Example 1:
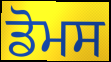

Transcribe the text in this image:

ਡੋਮਸ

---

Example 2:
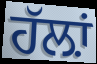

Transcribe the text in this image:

ਹੱਲ਼ਾਂ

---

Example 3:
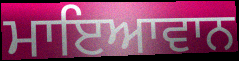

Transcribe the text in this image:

ਮਾਇਆਵਾਨ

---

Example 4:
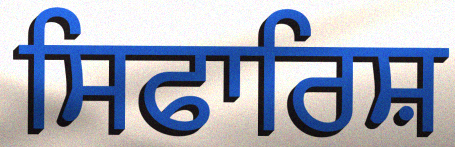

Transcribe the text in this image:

ਸਿਫਾਰਿਸ਼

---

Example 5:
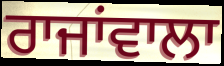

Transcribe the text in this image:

ਰਾਜਾਂਵਾਲਾ